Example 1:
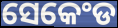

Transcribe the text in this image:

ସେକେଂଡ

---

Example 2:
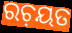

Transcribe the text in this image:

ରଚ଼ୟତ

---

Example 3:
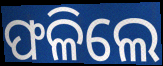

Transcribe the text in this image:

ଫଳିଲେ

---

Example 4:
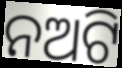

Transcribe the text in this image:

ନଅଟି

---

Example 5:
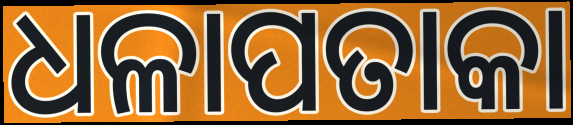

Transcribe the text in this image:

ଧଳାପତାକା